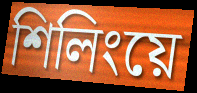
শিলিংয়ে